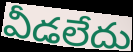
వీడలేదు